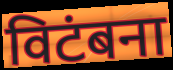
विटंबना